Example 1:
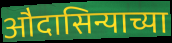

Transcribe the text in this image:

औदासिन्याच्या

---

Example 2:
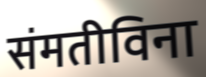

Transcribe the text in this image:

संमतीविना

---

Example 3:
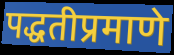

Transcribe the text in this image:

पद्धतीप्रमाणे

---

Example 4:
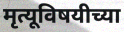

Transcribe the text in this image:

मृत्यूविषयीच्या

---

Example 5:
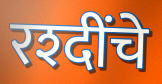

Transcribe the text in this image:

रश्दींचे